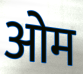
ओम